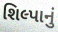
શિલ્પાનું